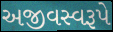
અજીવસ્વરૂપે